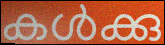
കൾക്കു